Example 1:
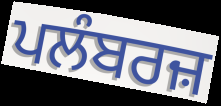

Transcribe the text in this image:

ਪਲੰਬਰਜ਼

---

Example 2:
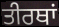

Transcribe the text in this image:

ਤੀਰਥਾਂ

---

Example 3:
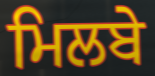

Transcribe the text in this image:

ਮਿਲਬੇ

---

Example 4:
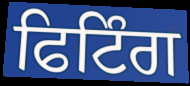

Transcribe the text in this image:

ਫਿਟਿੰਗ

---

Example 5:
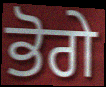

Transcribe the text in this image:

ਭੋਗੇ